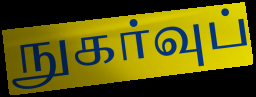
நுகர்வுப்